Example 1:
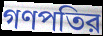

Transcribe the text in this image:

গণপতির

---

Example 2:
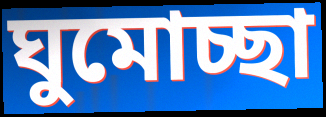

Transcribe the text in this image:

ঘুমোচ্ছা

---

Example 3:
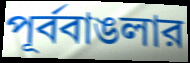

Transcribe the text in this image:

পূর্ববাঙলার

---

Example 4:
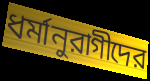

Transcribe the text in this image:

ধর্মানুরাগীদের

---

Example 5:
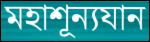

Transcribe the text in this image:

মহাশূন্যযান